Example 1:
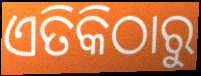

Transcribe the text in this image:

ଏତିକିଠାରୁ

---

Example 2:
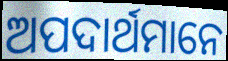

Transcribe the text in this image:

ଅପଦାର୍ଥମାନେ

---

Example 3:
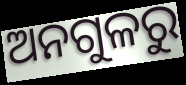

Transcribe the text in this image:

ଅନଗୁଳରୁ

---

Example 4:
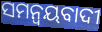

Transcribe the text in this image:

ସମନ୍ୱୟବାଦୀ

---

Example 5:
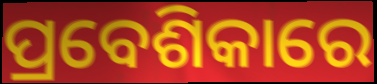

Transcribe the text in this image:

ପ୍ରବେଶିକାରେ